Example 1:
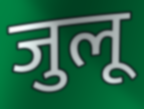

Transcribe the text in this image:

जुलू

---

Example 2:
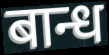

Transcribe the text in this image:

बान्ध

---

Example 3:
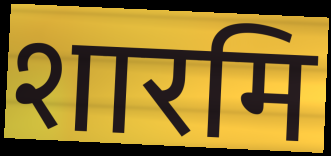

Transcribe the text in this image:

शारमि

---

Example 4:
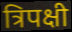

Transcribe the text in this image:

त्रिपक्षी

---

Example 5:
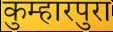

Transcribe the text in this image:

कुम्हारपुरा